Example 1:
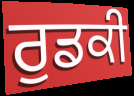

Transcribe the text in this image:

ਰੁਡਕੀ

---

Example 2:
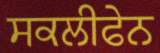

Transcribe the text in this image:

ਸਕਲੀਫੇਨ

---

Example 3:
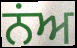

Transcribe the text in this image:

ਨਂਅ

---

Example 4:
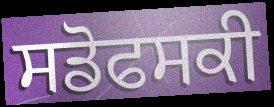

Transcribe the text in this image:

ਸਡੋਫਸਕੀ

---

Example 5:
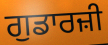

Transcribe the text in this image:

ਗੁਡਾਰਜ਼ੀ